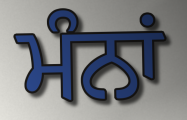
ਮੰਨਾਂ